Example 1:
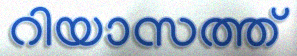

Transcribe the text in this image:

റിയാസത്ത്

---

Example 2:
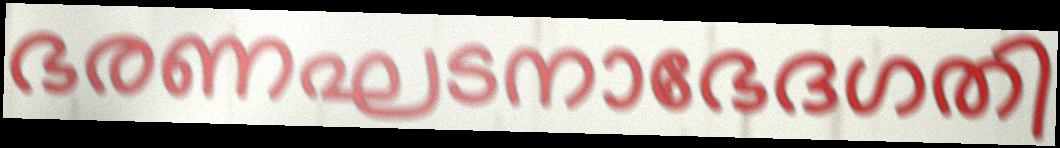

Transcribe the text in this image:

ഭരണഘടനാഭേദഗതി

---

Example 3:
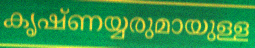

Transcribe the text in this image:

കൃഷ്ണയ്യരുമായുള്ള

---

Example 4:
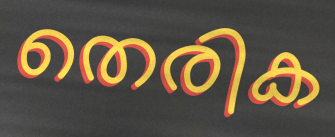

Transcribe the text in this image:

തെരിക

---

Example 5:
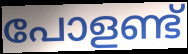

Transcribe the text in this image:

പോളണ്ട്